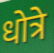
धोत्रे